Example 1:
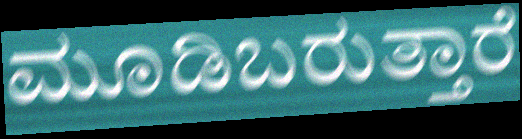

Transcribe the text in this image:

ಮೂಡಿಬರುತ್ತಾರೆ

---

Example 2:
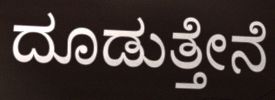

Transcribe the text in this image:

ದೂಡುತ್ತೇನೆ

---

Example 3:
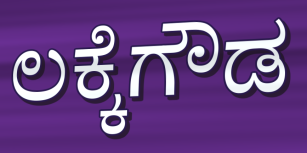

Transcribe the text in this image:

ಲಕ್ಕೆಗೌಡ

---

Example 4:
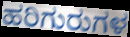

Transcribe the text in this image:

ಹರಿಗುರುಗಳ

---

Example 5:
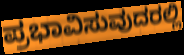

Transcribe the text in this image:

ಪ್ರಭಾವಿಸುವುದರಲ್ಲಿ